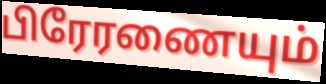
பிரேரணையும்